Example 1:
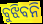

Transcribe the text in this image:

ବୁଝିବନି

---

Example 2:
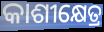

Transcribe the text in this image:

କାଶୀକ୍ଷେତ୍ର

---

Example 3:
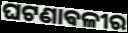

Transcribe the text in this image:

ଘଟଣାଵଳୀର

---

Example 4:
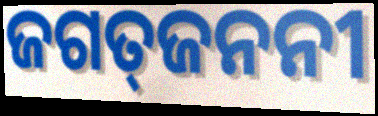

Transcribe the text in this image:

ଜଗତ୍‍ଜନନୀ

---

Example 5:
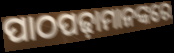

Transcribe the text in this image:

ପାଠପଢ଼ାମାନଙ୍କରେ